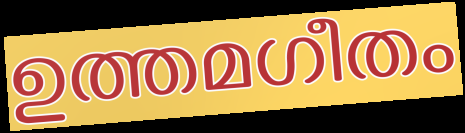
ഉത്തമഗീതം